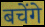
बचेंगे